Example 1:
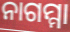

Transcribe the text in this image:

ନାଗମ୍ମା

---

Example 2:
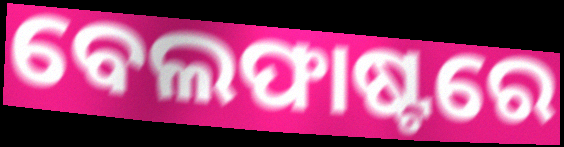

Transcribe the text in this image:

ବେଲଫାଷ୍ଟରେ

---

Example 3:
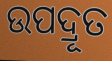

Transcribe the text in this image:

ଉପଦ୍ରୂତ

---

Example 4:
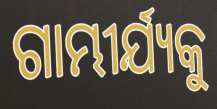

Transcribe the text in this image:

ଗାମ୍ଭୀର୍ଯ୍ୟକୁ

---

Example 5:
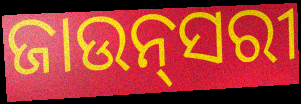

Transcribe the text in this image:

ଜାଉନ୍‌ସରୀ